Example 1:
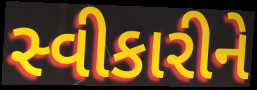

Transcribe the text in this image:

સ્વીકારીને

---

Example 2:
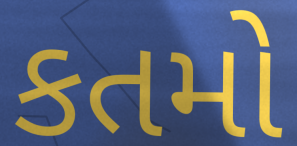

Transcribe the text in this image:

કતમો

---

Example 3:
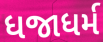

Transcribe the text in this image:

ધજાધર્મ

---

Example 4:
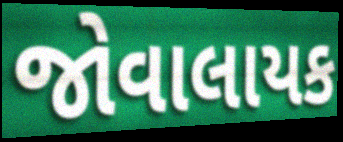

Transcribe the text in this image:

જોવાલાયક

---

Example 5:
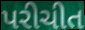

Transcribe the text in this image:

પરીચીત